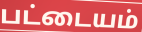
பட்டையம்